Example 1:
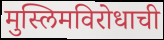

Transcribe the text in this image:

मुस्लिमविरोधाची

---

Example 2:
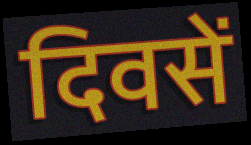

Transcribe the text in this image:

दिवसें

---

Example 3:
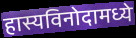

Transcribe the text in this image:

हास्यविनोदामध्ये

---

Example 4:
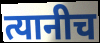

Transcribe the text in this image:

त्यानीच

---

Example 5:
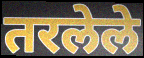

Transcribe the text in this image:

तरलेले